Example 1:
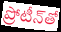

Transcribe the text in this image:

ప్రోటీన్‌తో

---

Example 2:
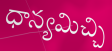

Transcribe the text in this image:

ధాన్యమిచ్చి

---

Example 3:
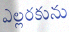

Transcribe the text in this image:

ఎల్లరకును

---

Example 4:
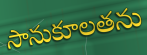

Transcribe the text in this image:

సానుకూలతను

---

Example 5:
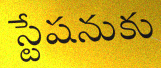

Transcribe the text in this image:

స్టేషనుకు